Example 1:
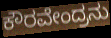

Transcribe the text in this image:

ಕೌರವೇಂದ್ರನು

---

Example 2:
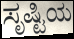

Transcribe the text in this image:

ಸೃಷ್ಟಿಯ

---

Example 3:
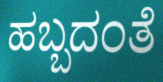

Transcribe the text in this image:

ಹಬ್ಬದಂತೆ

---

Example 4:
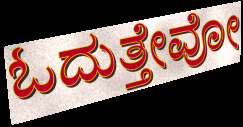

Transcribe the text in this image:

ಓದುತ್ತೇವೋ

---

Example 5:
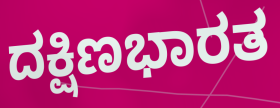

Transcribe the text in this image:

ದಕ್ಷಿಣಭಾರತ